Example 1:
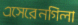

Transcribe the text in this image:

এসেরেনগিলা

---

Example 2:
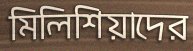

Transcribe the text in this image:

মিলিশিয়াদের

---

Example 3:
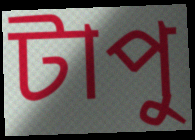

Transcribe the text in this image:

টাপু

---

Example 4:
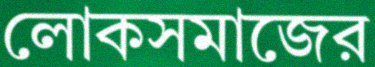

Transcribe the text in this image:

লোকসমাজের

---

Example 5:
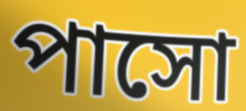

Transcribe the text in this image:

পাসো